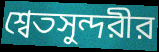
শ্বেতসুন্দরীর